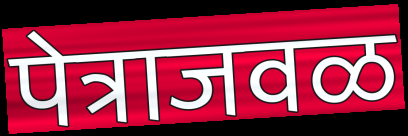
पेत्राजवळ